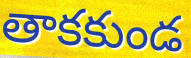
తాకకుండ